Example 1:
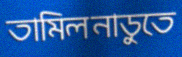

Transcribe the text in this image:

তামিলনাডুতে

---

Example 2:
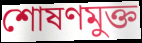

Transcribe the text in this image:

শোষণমুক্ত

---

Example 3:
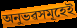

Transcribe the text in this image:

অনুভৱসমূহেই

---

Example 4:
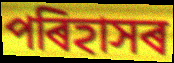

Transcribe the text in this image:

পৰিহাসৰ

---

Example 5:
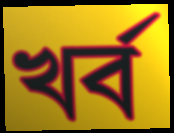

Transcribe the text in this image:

খৰ্ব